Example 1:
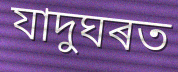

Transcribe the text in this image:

যাদুঘৰত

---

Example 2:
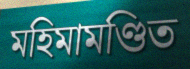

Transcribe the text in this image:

মহিমামণ্ডিত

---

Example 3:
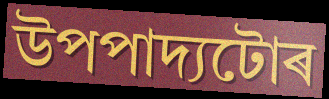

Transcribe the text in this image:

উপপাদ্যটোৰ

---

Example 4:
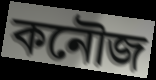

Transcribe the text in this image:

কনৌজ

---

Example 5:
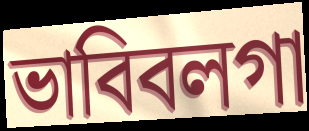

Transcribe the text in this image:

ভাবিবলগা